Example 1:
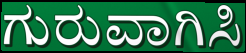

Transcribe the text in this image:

ಗುರುವಾಗಿಸಿ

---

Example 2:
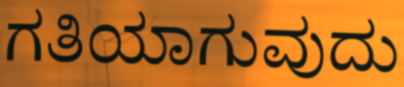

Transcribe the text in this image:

ಗತಿಯಾಗುವುದು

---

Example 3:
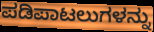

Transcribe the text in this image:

ಪಡಿಪಾಟಲುಗಳನ್ನು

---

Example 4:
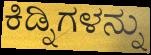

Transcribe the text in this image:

ಕಿಡ್ನಿಗಳನ್ನು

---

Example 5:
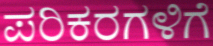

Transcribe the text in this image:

ಪರಿಕರಗಳಿಗೆ